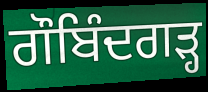
ਗੌਬਿੰਦਗੜ੍ਹ